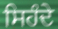
ਸਿਹੰਦੇ